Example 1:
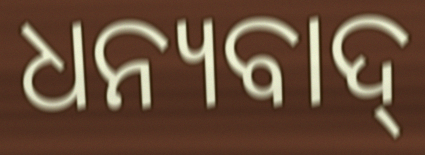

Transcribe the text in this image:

ଧନ୍ୟବାଦ୍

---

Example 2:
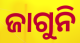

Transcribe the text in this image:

ଜାଗୁନି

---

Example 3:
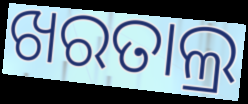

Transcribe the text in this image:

ଖରତାଲ୍ର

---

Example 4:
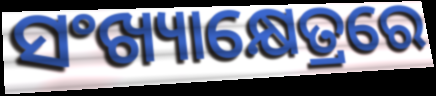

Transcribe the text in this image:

ସଂଖ୍ୟାକ୍ଷେତ୍ରରେ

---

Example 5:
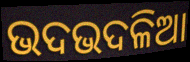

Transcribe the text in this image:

ଭଦଭଦଳିଆ